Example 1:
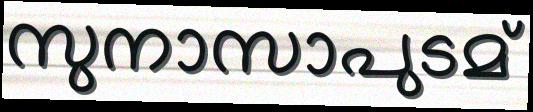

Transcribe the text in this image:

സുനാസാപുടമ്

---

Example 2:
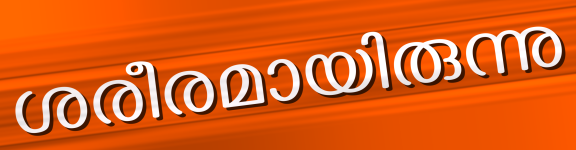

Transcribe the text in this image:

ശരീരമായിരുന്നു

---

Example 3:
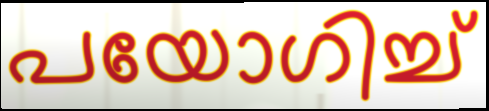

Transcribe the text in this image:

പയോഗിച്ച്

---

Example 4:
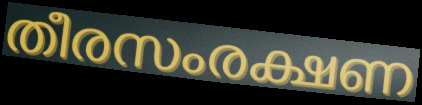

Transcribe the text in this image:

തീരസംരക്ഷണ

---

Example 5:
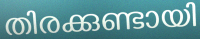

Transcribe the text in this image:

തിരക്കുണ്ടായി